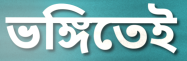
ভঙ্গিতেই